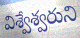
విశ్వేశ్వరుని